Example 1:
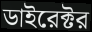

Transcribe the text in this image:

ডাইরেক্টর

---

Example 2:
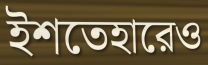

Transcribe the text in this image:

ইশতেহারেও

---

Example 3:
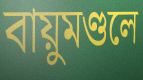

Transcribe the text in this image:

বায়ুমণ্ডলে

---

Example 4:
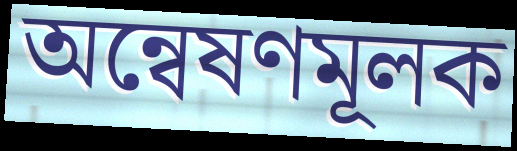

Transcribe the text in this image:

অন্বেষণমূলক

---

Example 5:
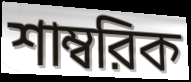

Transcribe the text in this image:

শাম্বরিক